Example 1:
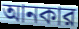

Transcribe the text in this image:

আনকার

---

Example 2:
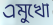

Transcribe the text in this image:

এমুখো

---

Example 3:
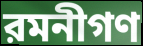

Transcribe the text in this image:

রমনীগণ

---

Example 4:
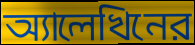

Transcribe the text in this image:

অ্যালেখিনের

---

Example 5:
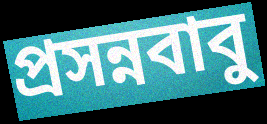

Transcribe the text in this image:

প্রসন্নবাবু